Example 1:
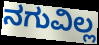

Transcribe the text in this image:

ನಗುವಿಲ್ಲ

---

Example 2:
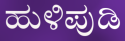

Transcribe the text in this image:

ಹುಳಿಪುಡಿ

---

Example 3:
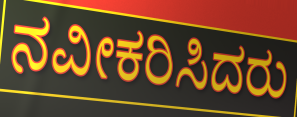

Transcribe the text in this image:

ನವೀಕರಿಸಿದರು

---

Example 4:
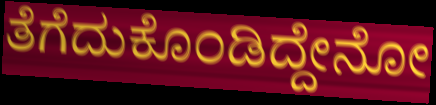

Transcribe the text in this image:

ತೆಗೆದುಕೊಂಡಿದ್ದೇನೋ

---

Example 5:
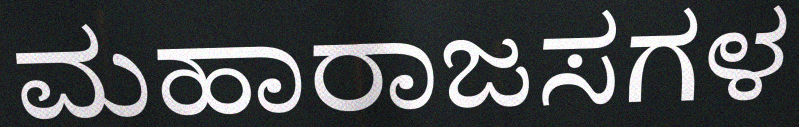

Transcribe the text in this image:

ಮಹಾರಾಜಸಗಳ